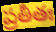
ప్రతీతః